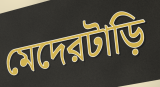
মেদেরটাড়ি